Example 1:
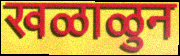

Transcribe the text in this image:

खळाळुन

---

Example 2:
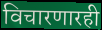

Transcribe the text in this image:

विचारणारही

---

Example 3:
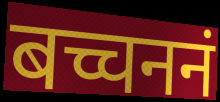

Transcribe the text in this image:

बच्चननं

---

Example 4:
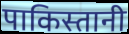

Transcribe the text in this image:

पाकिस्तानी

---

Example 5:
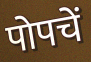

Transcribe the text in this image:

पोपचें